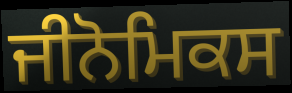
ਜੀਨੋਮਿਕਸ